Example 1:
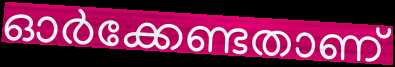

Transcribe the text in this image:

ഓർക്കേണ്ടതാണ്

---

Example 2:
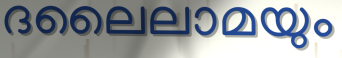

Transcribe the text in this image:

ദലൈലാമയും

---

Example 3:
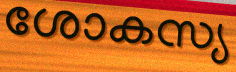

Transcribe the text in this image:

ശോകസ്യ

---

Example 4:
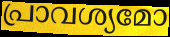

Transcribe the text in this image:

പ്രാവശ്യമോ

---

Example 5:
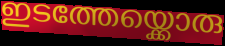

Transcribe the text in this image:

ഇടത്തേയ്ക്കൊരു